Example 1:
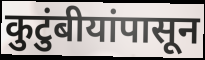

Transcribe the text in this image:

कुटुंबीयांपासून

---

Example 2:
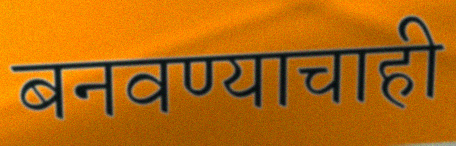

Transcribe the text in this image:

बनवण्याचाही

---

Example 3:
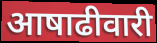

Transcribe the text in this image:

आषाढीवारी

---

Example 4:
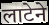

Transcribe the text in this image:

लाटेने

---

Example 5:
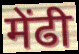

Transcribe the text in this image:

मेंढी